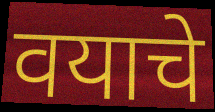
वयाचे